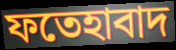
ফতেহাবাদ